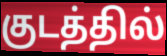
குடத்தில்